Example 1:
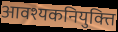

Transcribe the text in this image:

आवश्यकनियुक्ति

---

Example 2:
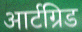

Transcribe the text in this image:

आर्टग्रिड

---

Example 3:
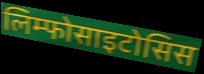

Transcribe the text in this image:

लिम्फोसाइटोसिस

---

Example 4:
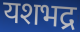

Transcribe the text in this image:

यशभद्र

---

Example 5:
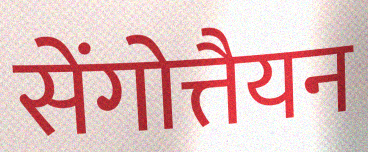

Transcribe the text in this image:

सेंगोत्तैयन